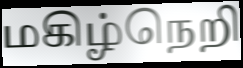
மகிழ்நெறி